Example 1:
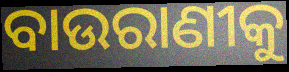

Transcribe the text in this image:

ବାଉରାଣୀକୁ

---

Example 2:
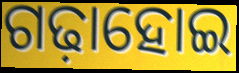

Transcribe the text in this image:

ଗଢ଼ାହୋଇ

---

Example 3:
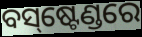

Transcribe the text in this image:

ବସ୍‌ଷ୍ଟେଣ୍ଡରେ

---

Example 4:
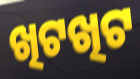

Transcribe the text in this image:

ଖିଟଖିଟ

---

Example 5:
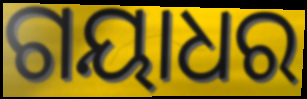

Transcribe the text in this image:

ଗୟାଧର